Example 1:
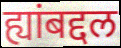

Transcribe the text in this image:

ह्यांबद्दल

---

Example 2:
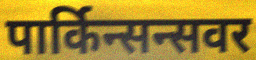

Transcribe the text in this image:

पार्किन्सन्सवर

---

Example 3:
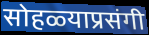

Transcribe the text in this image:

सोहळ्याप्रसंगी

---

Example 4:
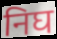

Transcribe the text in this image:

निघ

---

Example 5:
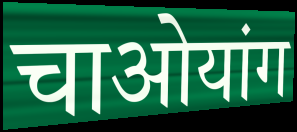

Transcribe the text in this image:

चाओयांग